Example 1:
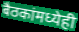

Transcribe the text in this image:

बैठकांमध्येही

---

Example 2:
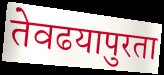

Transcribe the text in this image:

तेवढयापुरता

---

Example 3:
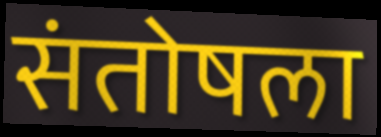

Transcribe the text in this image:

संतोषला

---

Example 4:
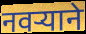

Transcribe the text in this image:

नवर्‍याने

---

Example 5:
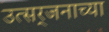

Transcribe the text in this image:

उत्सर्जनाच्या